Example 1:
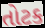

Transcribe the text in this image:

તોટક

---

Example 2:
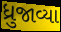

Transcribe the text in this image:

ધ્રુજાવ્યા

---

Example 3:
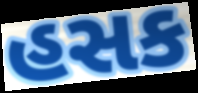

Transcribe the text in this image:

હસક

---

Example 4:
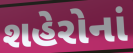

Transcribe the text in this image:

શહેરોનાં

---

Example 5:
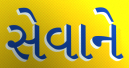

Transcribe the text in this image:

સેવાને